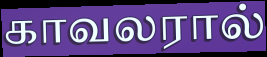
காவலரால்